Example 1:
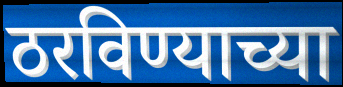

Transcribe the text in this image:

ठरविण्याच्या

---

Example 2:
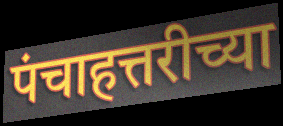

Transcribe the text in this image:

पंचाहत्तरीच्या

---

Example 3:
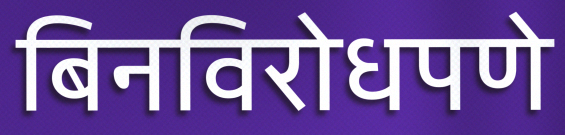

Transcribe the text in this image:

बिनविरोधपणे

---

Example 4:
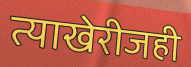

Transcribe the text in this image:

त्याखेरीजही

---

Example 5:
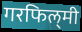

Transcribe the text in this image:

गरफिल्मी